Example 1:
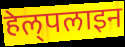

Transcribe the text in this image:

हेल्पलाइन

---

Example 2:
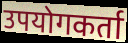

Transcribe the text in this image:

उपयोगकर्ता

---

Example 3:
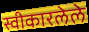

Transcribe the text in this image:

स्वीकारलेले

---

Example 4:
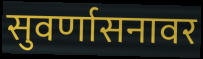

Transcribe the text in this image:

सुवर्णासनावर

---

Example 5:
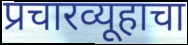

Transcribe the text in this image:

प्रचारव्यूहाचा